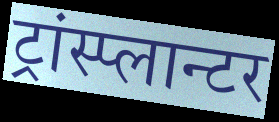
ट्रांस्प्लान्टर